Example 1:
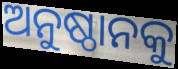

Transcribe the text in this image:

ଅନୁଷ୍ଠାନକୁ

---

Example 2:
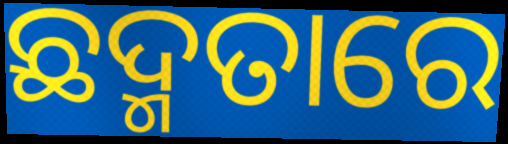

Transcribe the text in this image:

ଛଦ୍ମତାରେ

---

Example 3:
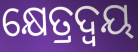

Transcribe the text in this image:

କ୍ଷେତ୍ରଦ୍ଵୟ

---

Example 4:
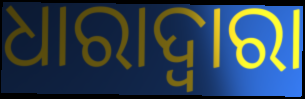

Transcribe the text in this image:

ଧାରାଦ୍ୱାରା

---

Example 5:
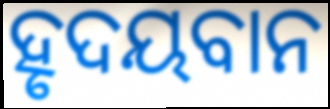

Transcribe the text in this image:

ହୃଦୟବାନ